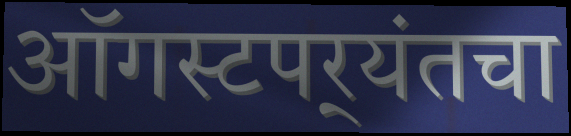
ऑगस्टपर्यंतचा